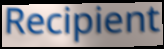
Recipient